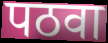
पठवा